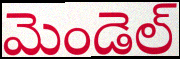
మెండెల్